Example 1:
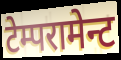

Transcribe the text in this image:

टेम्परामेन्ट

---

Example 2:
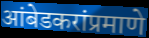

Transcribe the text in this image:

आंबेडकरांप्रमाणे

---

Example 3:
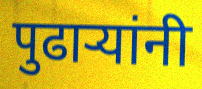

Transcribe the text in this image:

पुढाऱ्यांनी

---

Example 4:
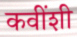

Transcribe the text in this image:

कवींशी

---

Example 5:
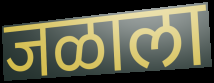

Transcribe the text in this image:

जळाला